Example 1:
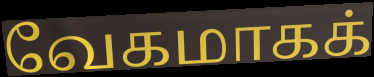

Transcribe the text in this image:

வேகமாகக்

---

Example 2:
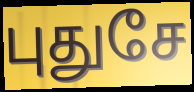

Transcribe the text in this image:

புதுசே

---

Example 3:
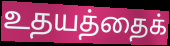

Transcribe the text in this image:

உதயத்தைக்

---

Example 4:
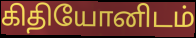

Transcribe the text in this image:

கிதியோனிடம்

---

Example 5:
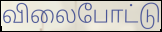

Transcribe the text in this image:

விலைபோட்டு